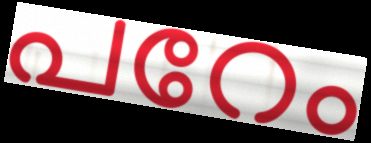
പറേം